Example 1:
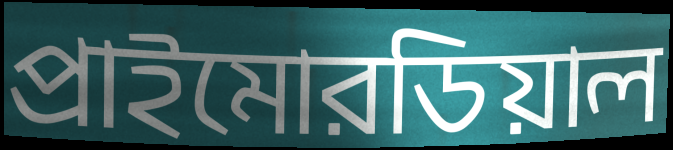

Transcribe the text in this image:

প্রাইমোরডিয়াল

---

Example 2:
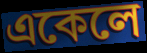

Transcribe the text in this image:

একেলে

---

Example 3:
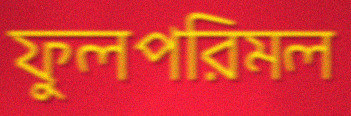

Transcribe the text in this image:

ফুলপরিমল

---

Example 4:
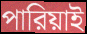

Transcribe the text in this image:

পারিয়াই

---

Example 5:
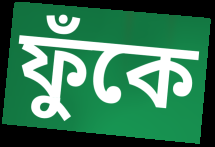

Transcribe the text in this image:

ফুঁকে